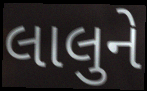
લાલુને